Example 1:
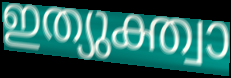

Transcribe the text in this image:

ഇത്യുക്ത്വാ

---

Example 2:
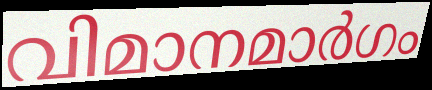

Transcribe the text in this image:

വിമാനമാർഗം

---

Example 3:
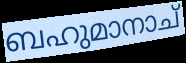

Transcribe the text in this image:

ബഹുമാനാച്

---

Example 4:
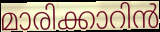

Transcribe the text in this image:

മാരിക്കാറിൻ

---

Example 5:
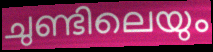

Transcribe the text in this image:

ചുണ്ടിലെയും